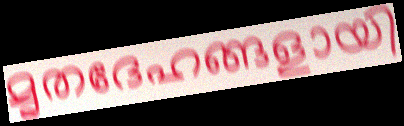
മൃതദേഹങ്ങളായി